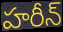
హరీన్